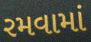
રમવામાં